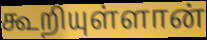
கூறியுள்ளான்